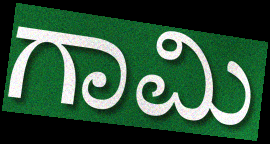
ಗಾಮಿ